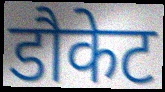
डौकेट